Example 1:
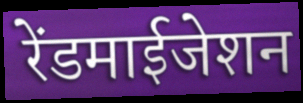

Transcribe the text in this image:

रेंडमाईजेशन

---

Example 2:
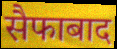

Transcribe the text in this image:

सैफाबाद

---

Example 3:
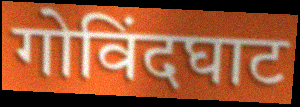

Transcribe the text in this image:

गोविंदघाट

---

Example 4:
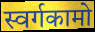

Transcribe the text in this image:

स्वर्गकामो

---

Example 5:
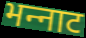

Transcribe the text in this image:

भन्नाट